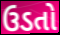
ઉડતો